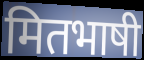
मितभाषी